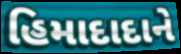
હિમાદાદાને